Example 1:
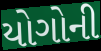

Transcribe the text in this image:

યોગોની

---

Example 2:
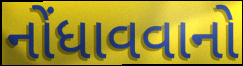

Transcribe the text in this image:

નોંધાવવાનો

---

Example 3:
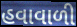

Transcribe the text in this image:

હવાવાળી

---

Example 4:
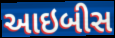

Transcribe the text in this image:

આઇબીસ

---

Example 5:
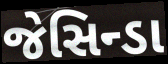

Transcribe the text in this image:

જેસિન્ડા